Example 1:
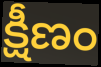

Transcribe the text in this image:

క్షీణం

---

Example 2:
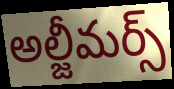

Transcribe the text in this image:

అల్జీమర్స్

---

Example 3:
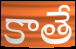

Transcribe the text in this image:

కాతే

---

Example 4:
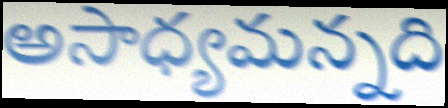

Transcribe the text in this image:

అసాధ్యమన్నది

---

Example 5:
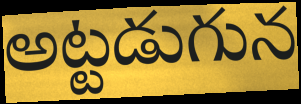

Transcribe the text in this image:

అట్టడుగున